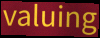
valuing